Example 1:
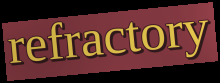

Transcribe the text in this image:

refractory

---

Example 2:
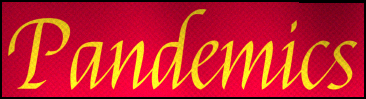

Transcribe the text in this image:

Pandemics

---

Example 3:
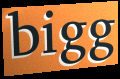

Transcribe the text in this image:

bigg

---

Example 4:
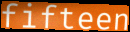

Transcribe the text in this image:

fifteen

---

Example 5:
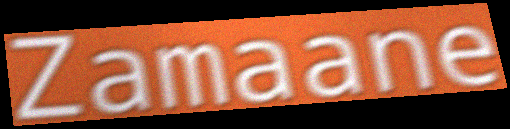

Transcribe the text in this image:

Zamaane